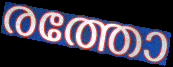
രത്തോ